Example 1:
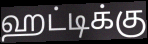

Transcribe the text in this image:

ஹட்டிக்கு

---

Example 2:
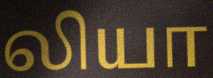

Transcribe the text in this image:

லியா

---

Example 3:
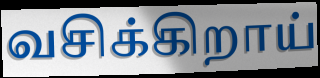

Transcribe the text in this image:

வசிக்கிறாய்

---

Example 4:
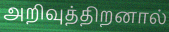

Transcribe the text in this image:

அறிவுத்திறனால்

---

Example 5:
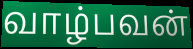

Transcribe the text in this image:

வாழ்பவன்